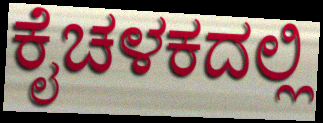
ಕೈಚಳಕದಲ್ಲಿ